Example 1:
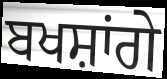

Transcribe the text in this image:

ਬਖਸ਼ਾਂਗੇ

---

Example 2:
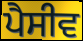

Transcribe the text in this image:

ਪੈਸੀਵ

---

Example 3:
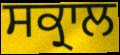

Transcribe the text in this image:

ਸਕ੍ਰਾਲ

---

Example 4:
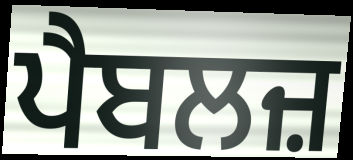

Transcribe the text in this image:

ਪੈਬਲਜ਼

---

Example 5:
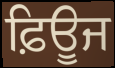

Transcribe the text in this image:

ਫ਼ਿਊਜ